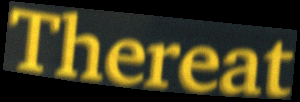
Thereat